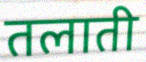
तलाती